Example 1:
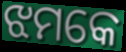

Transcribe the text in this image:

ଝମକେ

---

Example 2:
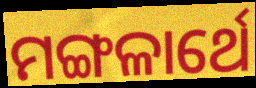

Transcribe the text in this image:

ମଙ୍ଗଳାର୍ଥେ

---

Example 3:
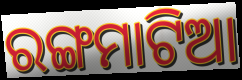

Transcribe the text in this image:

ରଙ୍ଗମାଟିଆ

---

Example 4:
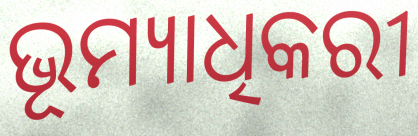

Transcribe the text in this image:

ଭୂମ୍ୟାଧିକରୀ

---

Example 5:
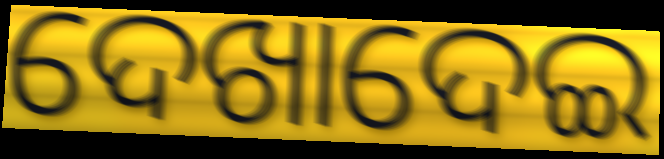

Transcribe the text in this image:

ଦେଖାଦେଇ